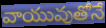
వాయువుతోనే